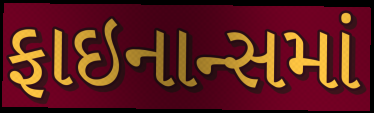
ફાઇનાન્સમાં